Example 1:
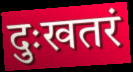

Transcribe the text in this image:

दुःखतरं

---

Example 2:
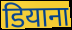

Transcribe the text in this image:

डियाना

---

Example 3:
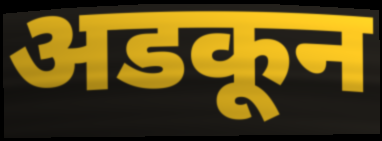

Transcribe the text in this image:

अडकून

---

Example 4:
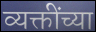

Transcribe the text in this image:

व्यक्तींच्या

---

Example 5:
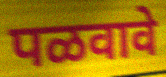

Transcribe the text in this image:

पळवावे